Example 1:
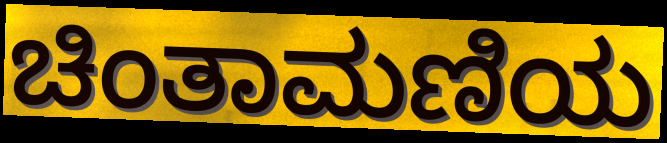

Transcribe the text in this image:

ಚಿಂತಾಮಣಿಯ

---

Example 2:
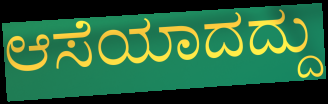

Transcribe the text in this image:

ಆಸೆಯಾದದ್ದು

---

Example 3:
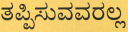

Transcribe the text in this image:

ತಪ್ಪಿಸುವವರಲ್ಲ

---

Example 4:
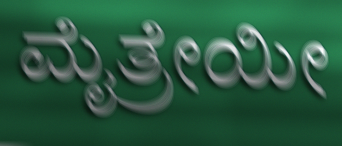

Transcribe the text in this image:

ಮೈತ್ರೇಯೀ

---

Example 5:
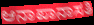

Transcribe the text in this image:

ಆನಾಪಾನಾಸತಿ